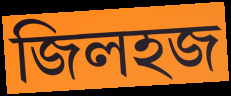
জিলহজ